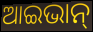
ଆଇଭାନ୍